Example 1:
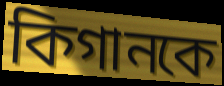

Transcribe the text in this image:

কিগানকে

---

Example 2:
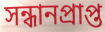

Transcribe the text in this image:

সন্ধানপ্রাপ্ত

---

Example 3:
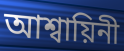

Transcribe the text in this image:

আশ্বায়িনী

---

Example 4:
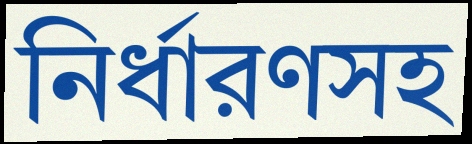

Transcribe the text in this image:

নির্ধারণসহ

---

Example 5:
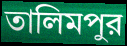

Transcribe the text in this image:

তালিমপুর